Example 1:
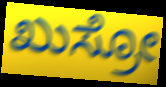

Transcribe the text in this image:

ಖುಸ್ರೋ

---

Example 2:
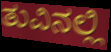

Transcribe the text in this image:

ತುವಿನಲ್ಲಿ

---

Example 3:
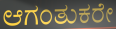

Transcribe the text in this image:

ಆಗಂತುಕರೇ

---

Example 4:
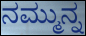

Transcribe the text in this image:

ನಮ್ಮುನ್ನ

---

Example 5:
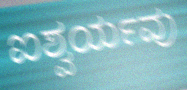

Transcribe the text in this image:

ಐಶ್ವರ್ಯವು